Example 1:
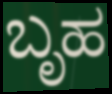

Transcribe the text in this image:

ಬೃಹ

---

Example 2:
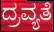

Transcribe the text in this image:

ದ್ರವ್ಯತೆ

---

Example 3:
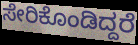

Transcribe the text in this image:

ಸೇರಿಕೊಂಡಿದ್ದರೆ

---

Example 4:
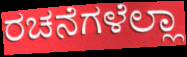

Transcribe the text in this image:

ರಚನೆಗಳೆಲ್ಲಾ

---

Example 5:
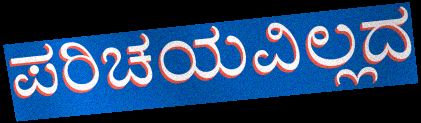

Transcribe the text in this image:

ಪರಿಚಯವಿಲ್ಲದ